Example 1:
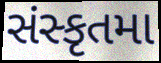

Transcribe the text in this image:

સંસ્કૃતમા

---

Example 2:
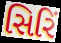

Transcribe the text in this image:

સિરિં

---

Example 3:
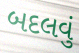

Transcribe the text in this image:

બદલવું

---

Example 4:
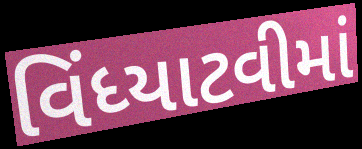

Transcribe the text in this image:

વિંધ્યાટવીમાં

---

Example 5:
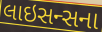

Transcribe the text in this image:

લાઇસન્સના